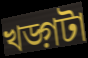
খড়্গটা